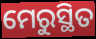
ମେରୁସ୍ଥିତ